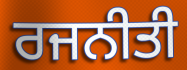
ਰਜਨੀਤੀ